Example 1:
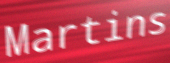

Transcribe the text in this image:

Martins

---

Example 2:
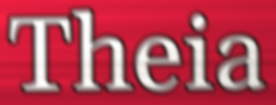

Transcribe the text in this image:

Theia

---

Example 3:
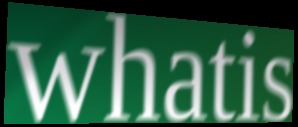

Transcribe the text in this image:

whatis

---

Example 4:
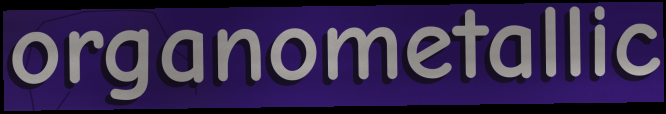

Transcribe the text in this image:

organometallic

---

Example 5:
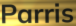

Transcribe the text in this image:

Parris